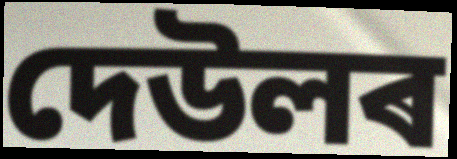
দেউলৰ